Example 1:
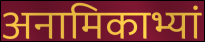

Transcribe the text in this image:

अनामिकाभ्यां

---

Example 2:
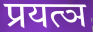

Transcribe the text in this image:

प्रयत्ञ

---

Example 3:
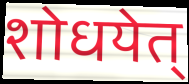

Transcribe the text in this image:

शोधयेत्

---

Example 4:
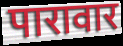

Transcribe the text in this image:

पारावार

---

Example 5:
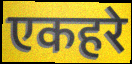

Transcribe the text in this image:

एकहरे